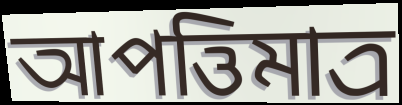
আপত্তিমাত্র